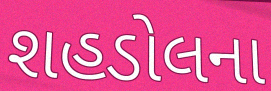
શહડોલના